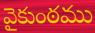
వైకుంఠము